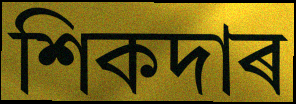
শিকদাৰ